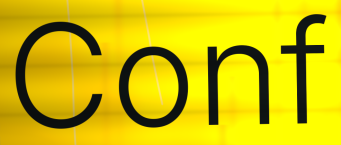
Conf